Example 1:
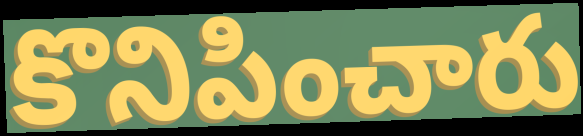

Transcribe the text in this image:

కొనిపించారు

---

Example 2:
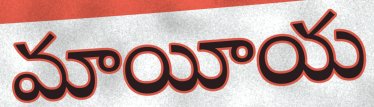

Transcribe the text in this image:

మాయీయ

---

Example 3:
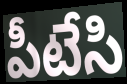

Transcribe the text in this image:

పీటేసి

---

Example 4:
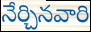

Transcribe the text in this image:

నేర్చినవారి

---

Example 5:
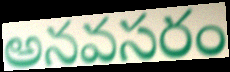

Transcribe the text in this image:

అనవసరం